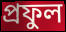
প্রফুল